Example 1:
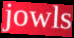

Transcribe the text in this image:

jowls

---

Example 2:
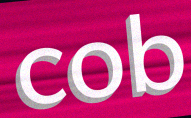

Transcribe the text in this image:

cob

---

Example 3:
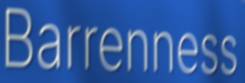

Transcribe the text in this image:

Barrenness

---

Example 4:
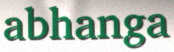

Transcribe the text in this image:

abhanga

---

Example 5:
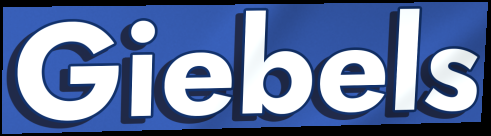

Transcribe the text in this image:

Giebels